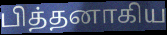
பித்தனாகிய